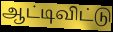
ஆட்டிவிட்டு